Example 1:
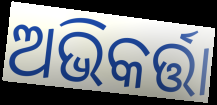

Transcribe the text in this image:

ଅଭିକର୍ତ୍ତା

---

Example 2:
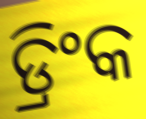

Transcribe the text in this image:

ଡ୍ରିଂକ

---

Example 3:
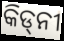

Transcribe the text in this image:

କିଡ୍‌ନୀ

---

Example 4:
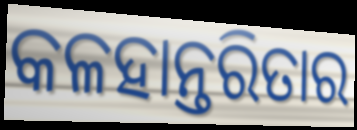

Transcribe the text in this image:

କଳହାନ୍ତରିତାର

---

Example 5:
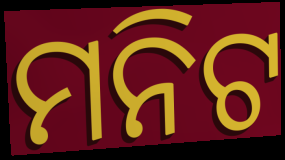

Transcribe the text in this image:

ମନିଟ